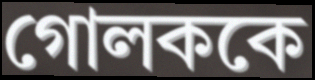
গোলককে